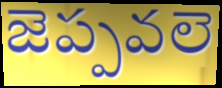
జెప్పవలె